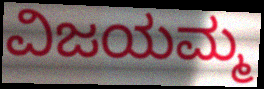
ವಿಜಯಮ್ಮ